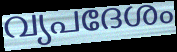
വ്യപദേശം